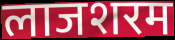
लाजशरम